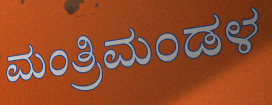
ಮಂತ್ರಿಮಂಡಳ